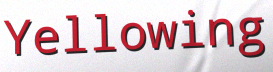
Yellowing